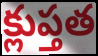
క్లుప్తత